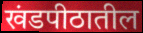
खंडपीठातील